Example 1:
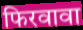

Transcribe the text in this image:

फिरवावा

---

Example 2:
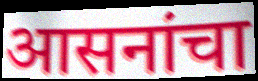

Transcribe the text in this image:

आसनांचा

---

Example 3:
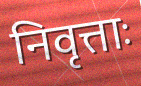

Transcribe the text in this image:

निवृत्ताः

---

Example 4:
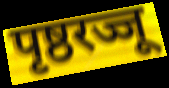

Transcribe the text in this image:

पृष्ठरज्जू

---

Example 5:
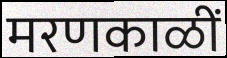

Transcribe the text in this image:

मरणकाळीं